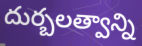
దుర్బలత్వాన్ని